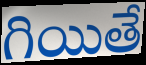
గియితే